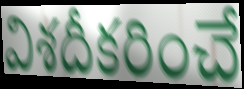
విశదీకరించే